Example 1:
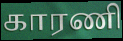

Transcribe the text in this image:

காரணி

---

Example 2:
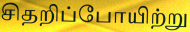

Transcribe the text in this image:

சிதறிப்போயிற்று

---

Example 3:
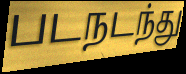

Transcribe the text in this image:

படநடந்து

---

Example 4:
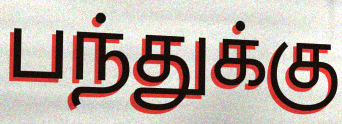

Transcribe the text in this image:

பந்துக்கு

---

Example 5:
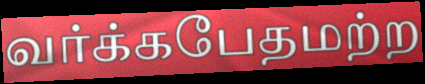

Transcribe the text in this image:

வர்க்கபேதமற்ற